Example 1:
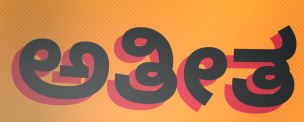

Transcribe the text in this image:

ಅತೀತ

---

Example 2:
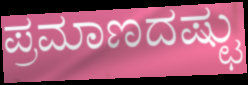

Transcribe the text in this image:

ಪ್ರಮಾಣದಷ್ಟು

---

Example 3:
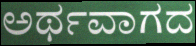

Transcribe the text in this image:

ಅರ್ಥವಾಗದ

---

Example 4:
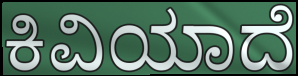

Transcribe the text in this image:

ಕಿವಿಯಾದೆ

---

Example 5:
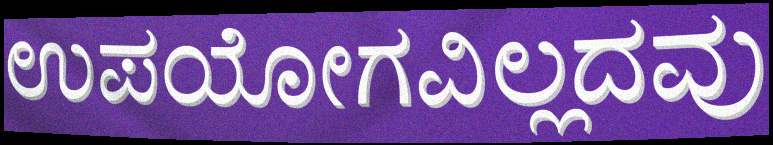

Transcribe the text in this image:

ಉಪಯೋಗವಿಲ್ಲದವು